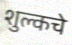
शुल्कचे